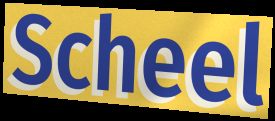
Scheel